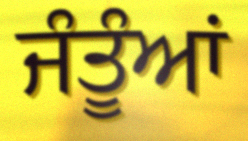
ਜੰਤੂੰਆਂ